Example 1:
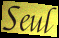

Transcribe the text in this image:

Seul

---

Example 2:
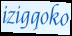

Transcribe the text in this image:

izigqoko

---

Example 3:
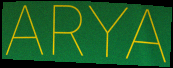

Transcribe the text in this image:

ARYA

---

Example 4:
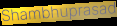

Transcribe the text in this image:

Shambhuprasad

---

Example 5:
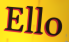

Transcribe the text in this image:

Ello